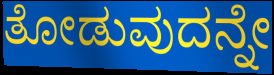
ತೋಡುವುದನ್ನೇ